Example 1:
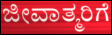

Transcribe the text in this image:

ಜೀವಾತ್ಮರಿಗೆ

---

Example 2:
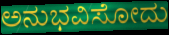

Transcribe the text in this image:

ಅನುಭವಿಸೋದು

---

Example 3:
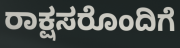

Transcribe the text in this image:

ರಾಕ್ಷಸರೊಂದಿಗೆ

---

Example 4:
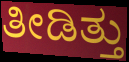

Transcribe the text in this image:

ತೀಡಿತ್ತು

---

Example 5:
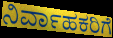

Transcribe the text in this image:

ನಿರ್ವಾಹಕರಿಗೆ